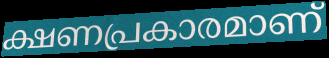
ക്ഷണപ്രകാരമാണ്